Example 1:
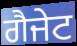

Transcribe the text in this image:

ਗੈਜੇਟ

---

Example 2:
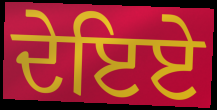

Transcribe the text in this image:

ਦੇਇਏ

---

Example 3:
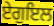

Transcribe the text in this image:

ਏਗੁਇਲ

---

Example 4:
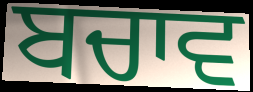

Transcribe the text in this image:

ਬਚਾਵ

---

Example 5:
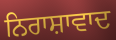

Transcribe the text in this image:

ਨਿਰਾਸ਼ਾਵਾਦ